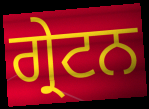
ਗ੍ਰੇਟਨ